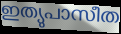
ഇത്യുപാസീത